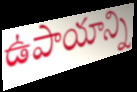
ఉపాయాన్ని